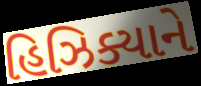
હિઝિક્યાને